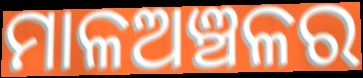
ମାଳଅଞ୍ଚଳର